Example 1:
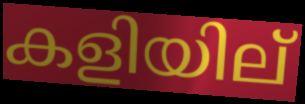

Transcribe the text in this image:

കളിയില്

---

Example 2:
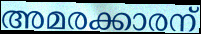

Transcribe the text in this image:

അമരക്കാരന്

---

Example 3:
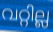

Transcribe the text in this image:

വറ്റില്ല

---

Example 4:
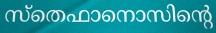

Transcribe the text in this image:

സ്തെഫാനൊസിന്റെ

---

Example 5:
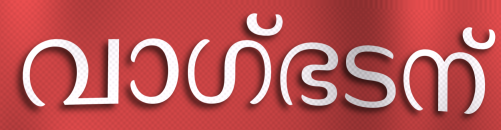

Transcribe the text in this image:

വാഗ്ഭടന്